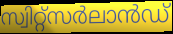
സ്വിറ്റ്സർലാൻഡ്